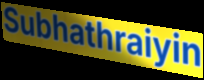
Subhathraiyin